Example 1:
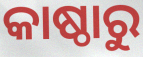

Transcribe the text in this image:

କାଷ୍ଠାରୁ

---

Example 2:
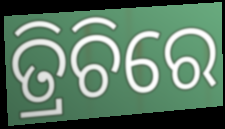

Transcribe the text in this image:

ତ୍ରିଚିରେ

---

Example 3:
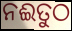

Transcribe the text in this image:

ନଈତୁଠ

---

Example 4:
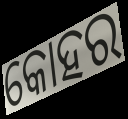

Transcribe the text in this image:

କୋହର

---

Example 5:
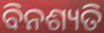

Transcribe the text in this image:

ବିନଶ୍ୟତି